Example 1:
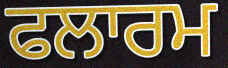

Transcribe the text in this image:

ਫਲਾਰਮ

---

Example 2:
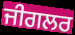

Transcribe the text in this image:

ਜੀਗਲਰ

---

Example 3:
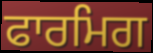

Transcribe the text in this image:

ਫਾਰਮਿਗ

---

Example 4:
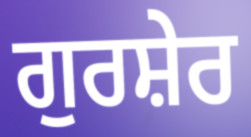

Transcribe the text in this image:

ਗੁਰਸ਼ੇਰ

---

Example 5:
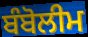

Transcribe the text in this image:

ਬੰਬੋਲੀਮ